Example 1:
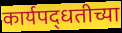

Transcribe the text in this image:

कार्यपद्धतीच्या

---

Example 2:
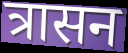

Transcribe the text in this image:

त्रासन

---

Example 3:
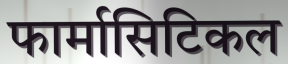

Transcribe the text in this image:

फार्मासिटिकल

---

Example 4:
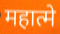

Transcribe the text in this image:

महात्मे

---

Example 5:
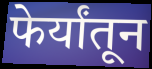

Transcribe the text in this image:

फेर्यांतून